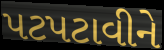
પટપટાવીને